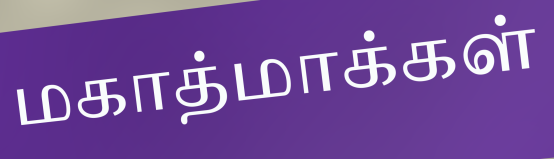
மகாத்மாக்கள்